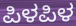
ಪಿಳಪಿಳ